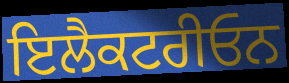
ਇਲੈਕਟਰੀਓਨ